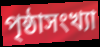
পৃষ্ঠাসংখ্যা